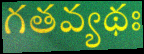
గతవ్యథః